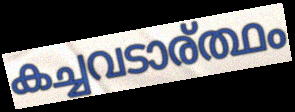
കച്ചവടാര്ത്ഥം